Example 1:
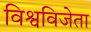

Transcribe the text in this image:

विश्वविजेता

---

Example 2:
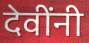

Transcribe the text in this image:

देवींनी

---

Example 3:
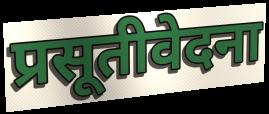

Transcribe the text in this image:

प्रसूतीवेदना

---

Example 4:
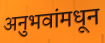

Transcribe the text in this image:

अनुभवांमधून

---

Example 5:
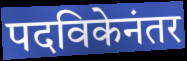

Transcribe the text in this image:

पदविकेनंतर